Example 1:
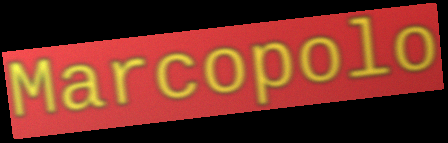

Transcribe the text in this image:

Marcopolo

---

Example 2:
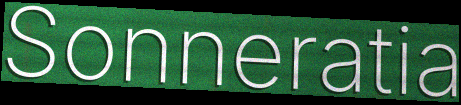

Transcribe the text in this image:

Sonneratia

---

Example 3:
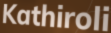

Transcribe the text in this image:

Kathiroli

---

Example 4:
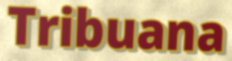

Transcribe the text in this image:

Tribuana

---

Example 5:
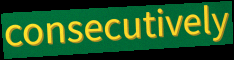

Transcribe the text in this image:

consecutively